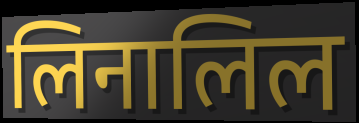
लिनालिल